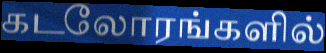
கடலோரங்களில்